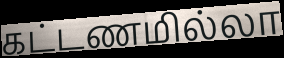
கட்டணமில்லா